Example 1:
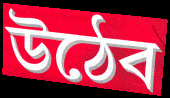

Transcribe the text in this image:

উঠেব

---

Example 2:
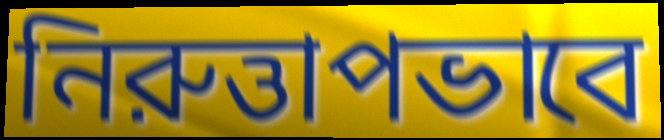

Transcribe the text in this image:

নিরুত্তাপভাবে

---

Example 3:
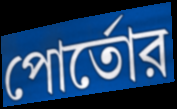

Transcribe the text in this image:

পোর্তোর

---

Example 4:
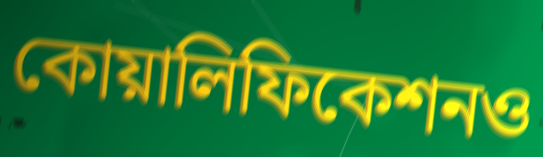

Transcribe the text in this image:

কোয়ালিফিকেশনও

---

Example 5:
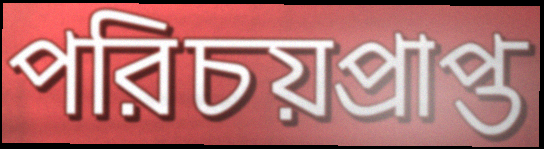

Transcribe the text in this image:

পরিচয়প্রাপ্ত